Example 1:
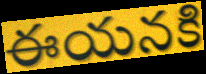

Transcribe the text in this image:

ఈయనకి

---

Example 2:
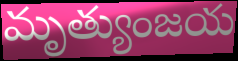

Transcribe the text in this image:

మృత్యుంజయ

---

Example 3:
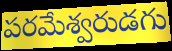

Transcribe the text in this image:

పరమేశ్వరుడగు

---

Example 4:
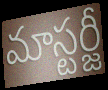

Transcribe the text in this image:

మాస్టర్జీ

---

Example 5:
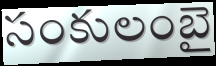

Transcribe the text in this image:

సంకులంబై